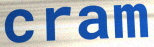
cram